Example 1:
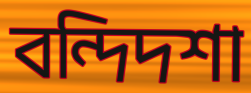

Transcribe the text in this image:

বন্দিদশা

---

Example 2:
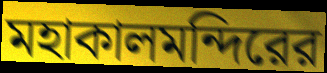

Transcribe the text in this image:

মহাকালমন্দিরের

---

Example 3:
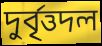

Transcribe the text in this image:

দুর্বৃত্তদল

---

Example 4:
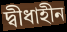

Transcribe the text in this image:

দ্বীধাহীন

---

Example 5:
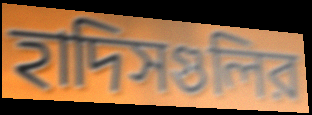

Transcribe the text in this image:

হাদিসগুলির